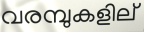
വരമ്പുകളില്